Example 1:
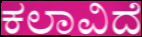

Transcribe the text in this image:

ಕಲಾವಿದೆ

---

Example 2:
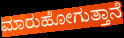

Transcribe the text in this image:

ಮಾರುಹೋಗುತ್ತಾನೆ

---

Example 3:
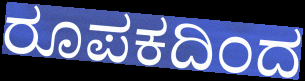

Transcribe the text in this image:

ರೂಪಕದಿಂದ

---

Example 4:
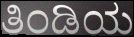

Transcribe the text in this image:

ತಿಂಡಿಯ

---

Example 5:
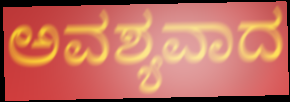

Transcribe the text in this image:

ಅವಶ್ಯವಾದ